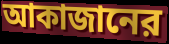
আকাজানের